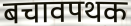
बचावपथक